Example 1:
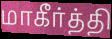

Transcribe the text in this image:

மாகீர்த்தி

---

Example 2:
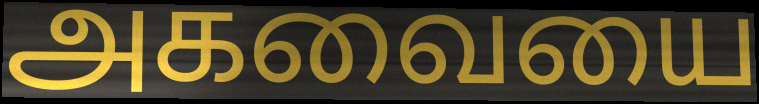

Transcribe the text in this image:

அகவையை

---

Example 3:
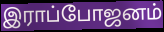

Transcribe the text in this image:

இராப்போஜனம்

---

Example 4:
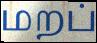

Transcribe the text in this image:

மறப்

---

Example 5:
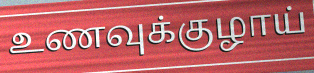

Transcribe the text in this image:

உணவுக்குழாய்